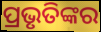
ପ୍ରଭୃତିଙ୍କର